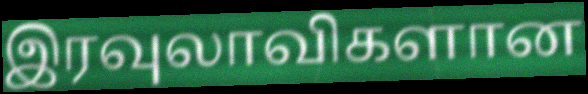
இரவுலாவிகளான